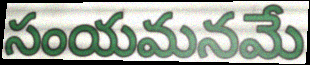
సంయమనమే